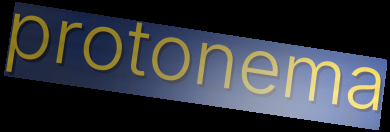
protonema